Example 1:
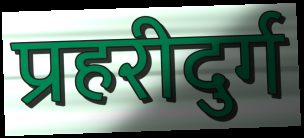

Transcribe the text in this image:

प्रहरीदुर्ग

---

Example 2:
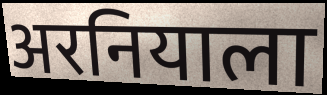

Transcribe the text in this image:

अरनियाला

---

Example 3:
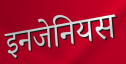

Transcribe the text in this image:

इनजेनियस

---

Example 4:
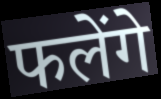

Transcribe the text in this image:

फलेंगे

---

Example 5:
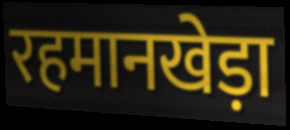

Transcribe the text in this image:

रहमानखेड़ा